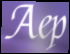
Aep